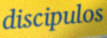
discipulos